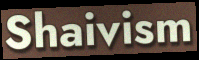
Shaivism